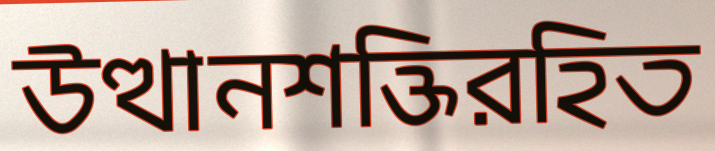
উত্থানশক্তিরহিত